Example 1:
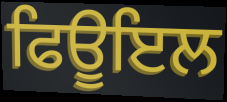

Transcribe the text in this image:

ਫਿਊਇਲ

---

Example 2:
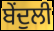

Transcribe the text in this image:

ਬੇਂਦੁਲੀ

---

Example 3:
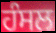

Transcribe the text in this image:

ਹੰਸਲ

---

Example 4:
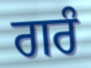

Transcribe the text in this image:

ਗਰੰ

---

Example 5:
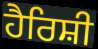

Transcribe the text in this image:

ਹੈਰਿਸ਼ੀ